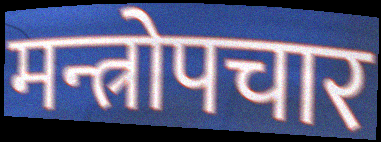
मन्त्रोपचार